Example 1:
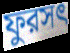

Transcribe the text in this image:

ফুরসৎ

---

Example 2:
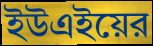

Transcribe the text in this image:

ইউএইয়ের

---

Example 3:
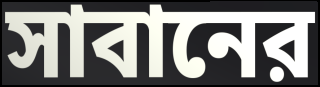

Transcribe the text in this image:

সাবানের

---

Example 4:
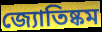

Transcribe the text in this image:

জ্যোতিষ্কম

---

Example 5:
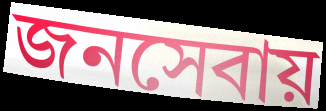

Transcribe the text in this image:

জনসেবায়